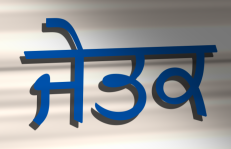
ਜੇਤਕ